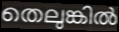
തെലുങ്കിൽ